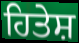
ਹਿਤੇਸ਼